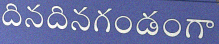
దినదినగండంగా